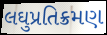
લઘુપ્રતિક્રમણ